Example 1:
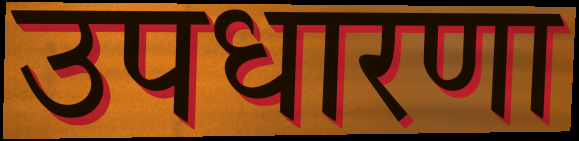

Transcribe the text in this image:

उपधारणा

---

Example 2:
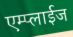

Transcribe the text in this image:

एम्प्लाईज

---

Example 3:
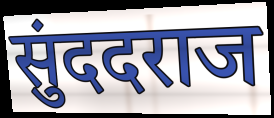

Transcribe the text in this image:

सुंददराज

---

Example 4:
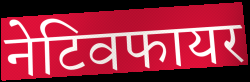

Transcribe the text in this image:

नेटिवफायर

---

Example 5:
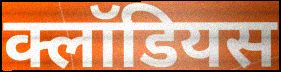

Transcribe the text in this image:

क्लॉडियस